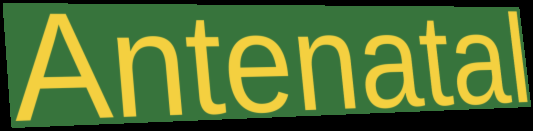
Antenatal